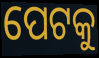
ପେଟକୁ